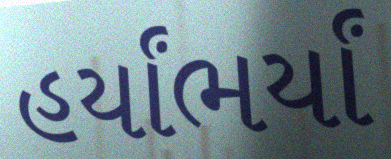
હર્યાંભર્યાં